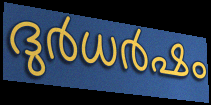
ദുർധർഷം